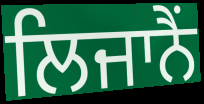
ਲਿਜਾਨੈਂ